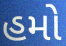
હમો